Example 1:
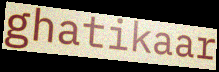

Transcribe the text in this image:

ghatikaar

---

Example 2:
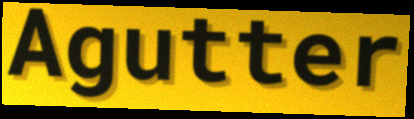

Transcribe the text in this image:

Agutter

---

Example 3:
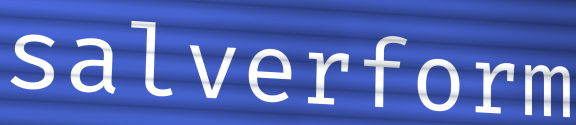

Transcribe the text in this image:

salverform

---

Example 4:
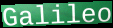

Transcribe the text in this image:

Galileo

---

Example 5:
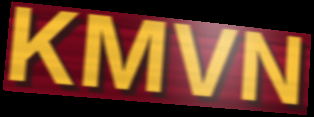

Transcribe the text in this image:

KMVN